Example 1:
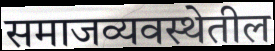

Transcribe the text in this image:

समाजव्यवस्थेतील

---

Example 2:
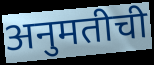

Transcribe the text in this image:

अनुमतीची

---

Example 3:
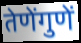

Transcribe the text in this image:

तेणेंगुणें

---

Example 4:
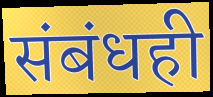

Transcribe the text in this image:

संबंधही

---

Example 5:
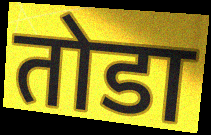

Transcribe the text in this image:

तोडा